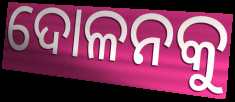
ଦୋଳନକୁ